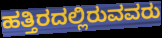
ಹತ್ತಿರದಲ್ಲಿರುವವರು